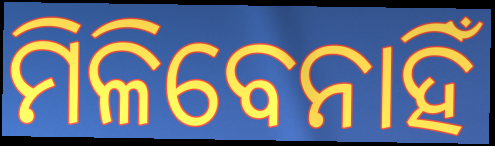
ମିଳିବେନାହିଁ